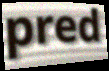
pred